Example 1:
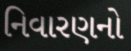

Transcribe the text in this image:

નિવારણનો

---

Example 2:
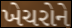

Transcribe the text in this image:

ખેચરોને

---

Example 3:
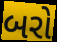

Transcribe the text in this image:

બરો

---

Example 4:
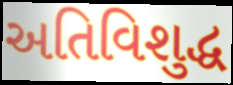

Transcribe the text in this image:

અતિવિશુદ્ધ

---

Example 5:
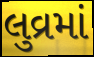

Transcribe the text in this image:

લુવ્રમાં